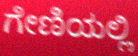
ಗೇಣಿಯಲ್ಲಿ